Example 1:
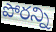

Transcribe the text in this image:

పోరన్ని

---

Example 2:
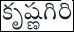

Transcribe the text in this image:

కృష్ణగిరి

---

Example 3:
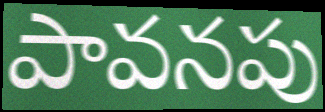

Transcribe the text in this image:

పావనపు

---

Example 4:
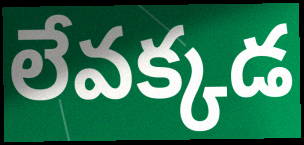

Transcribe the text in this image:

లేవక్కడ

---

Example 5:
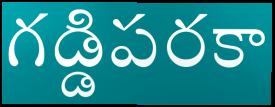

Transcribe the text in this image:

గడ్డిపరకా